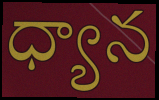
ధ్యాన